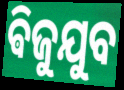
ଵିଜୁଯୁବ